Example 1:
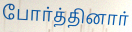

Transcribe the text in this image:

போர்த்தினார்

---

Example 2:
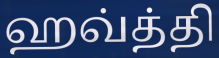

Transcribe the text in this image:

ஹவ்த்தி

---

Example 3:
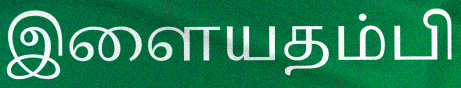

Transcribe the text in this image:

இளையதம்பி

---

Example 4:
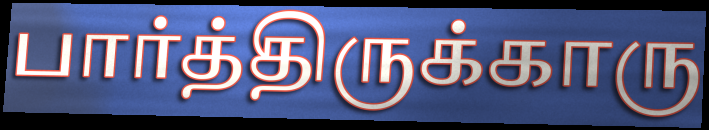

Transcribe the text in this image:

பார்த்திருக்காரு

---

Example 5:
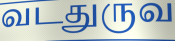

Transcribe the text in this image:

வடதுருவ